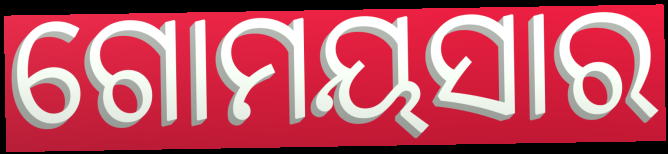
ଗୋମୟସାର